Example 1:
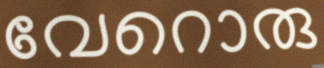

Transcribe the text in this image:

വേറൊരു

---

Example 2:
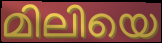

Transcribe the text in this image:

മിലിയെ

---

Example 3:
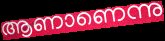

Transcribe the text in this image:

ആണാണെന്നു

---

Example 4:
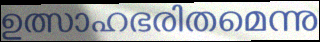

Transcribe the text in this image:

ഉത്സാഹഭരിതമെന്നു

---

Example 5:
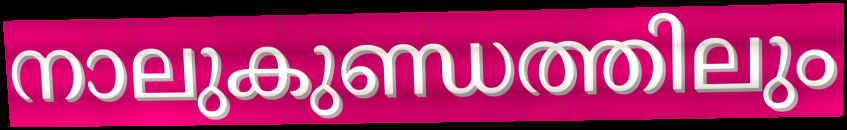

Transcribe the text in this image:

നാലുകുണ്ഡത്തിലും